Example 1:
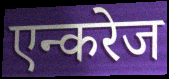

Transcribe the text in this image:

एन्करेज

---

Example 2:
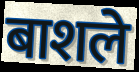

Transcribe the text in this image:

बाशले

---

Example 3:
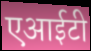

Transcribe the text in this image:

एआईटी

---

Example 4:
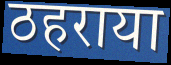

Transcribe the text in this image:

ठहराया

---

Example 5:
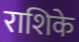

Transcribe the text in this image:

राशिके